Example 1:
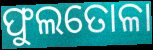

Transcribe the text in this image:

ଫୁଲତୋଳା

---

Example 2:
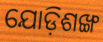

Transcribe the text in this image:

ଯୋଡ଼ିଶଙ୍ଖ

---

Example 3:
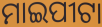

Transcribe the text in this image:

ମାଇପୀଟା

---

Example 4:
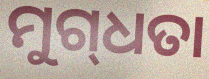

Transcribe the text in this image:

ମୁଗ୍‌ଧତା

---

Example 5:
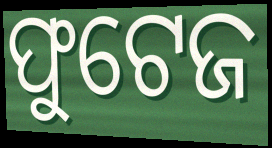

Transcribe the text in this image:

ଫୁଟେଜ